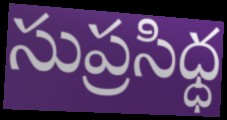
సుప్రసిధ్ధ